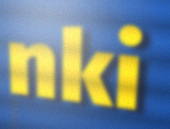
nki